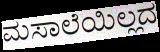
ಮಸಾಲೆಯಿಲ್ಲದ